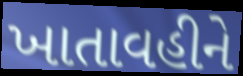
ખાતાવહીને